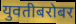
युवतीबरोबर